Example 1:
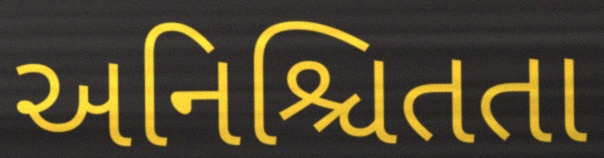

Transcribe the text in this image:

અનિશ્ચિતતા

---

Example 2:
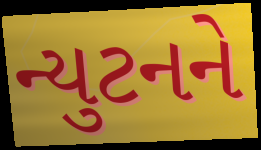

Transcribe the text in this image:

ન્યુટનને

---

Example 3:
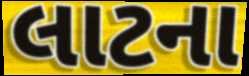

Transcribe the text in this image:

લાટના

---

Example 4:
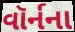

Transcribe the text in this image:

વૉર્નના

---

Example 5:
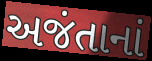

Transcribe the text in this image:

અજંતાનાં